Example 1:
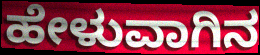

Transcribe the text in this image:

ಹೇಳುವಾಗಿನ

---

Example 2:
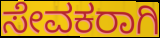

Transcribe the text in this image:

ಸೇವಕರಾಗಿ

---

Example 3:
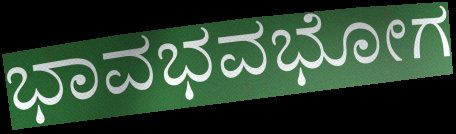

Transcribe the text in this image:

ಭಾವಭವಭೋಗ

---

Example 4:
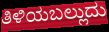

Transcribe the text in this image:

ತಿಳಿಯಬಲ್ಲುದು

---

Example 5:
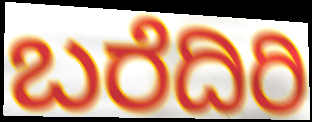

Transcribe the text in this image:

ಬರೆದಿರಿ